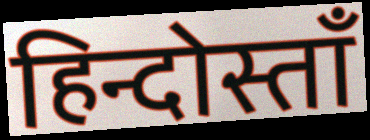
हिन्दोस्ताँ